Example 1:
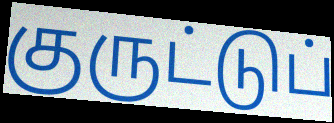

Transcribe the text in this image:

குருட்டுப்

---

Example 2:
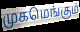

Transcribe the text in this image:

முகமெங்கும்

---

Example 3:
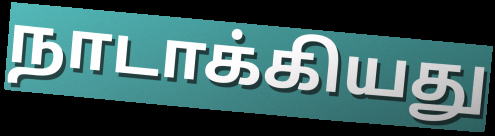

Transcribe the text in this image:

நாடாக்கியது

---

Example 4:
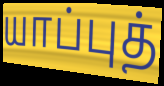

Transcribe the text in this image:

யாப்புத்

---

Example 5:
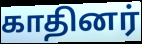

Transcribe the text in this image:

காதினர்